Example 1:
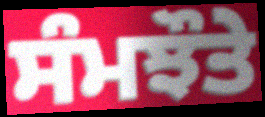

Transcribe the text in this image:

ਸੰਮਝੌਤੇ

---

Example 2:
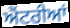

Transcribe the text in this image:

ਐਂਟਰੀਆਂ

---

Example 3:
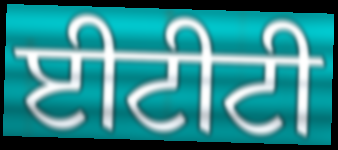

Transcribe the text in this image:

ਈਟੀਟੀ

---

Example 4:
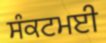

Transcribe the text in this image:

ਸੰਕਟਮਈ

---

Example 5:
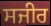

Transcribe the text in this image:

ਸਜੀਰ